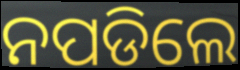
ନପଡିଲେ